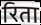
रिता